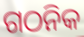
ଗଠନିକ